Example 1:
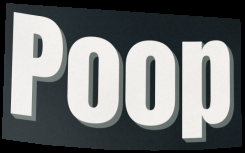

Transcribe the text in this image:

Poop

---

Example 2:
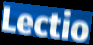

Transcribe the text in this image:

Lectio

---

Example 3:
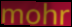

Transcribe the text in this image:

mohr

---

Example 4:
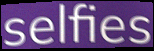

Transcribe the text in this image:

selfies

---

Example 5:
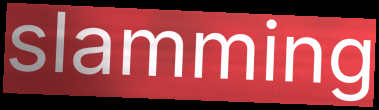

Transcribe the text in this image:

slamming